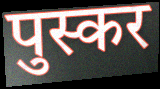
पुस्कर